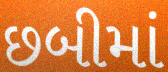
છબીમાં